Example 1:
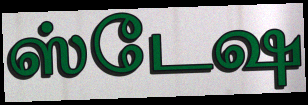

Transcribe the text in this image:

ஸ்டேஷ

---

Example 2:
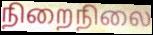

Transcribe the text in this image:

நிறைநிலை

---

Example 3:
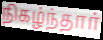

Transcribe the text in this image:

நிகழ்ந்தார்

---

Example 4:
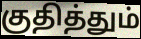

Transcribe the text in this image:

குதித்தும்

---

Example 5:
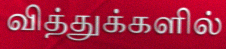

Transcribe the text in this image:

வித்துக்களில்